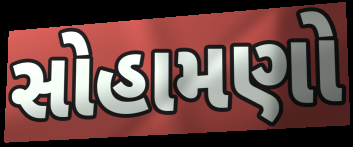
સોહામણો